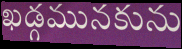
ఖడ్గమునకును